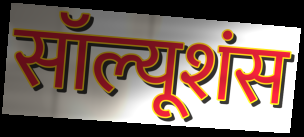
सॉल्यूशंस